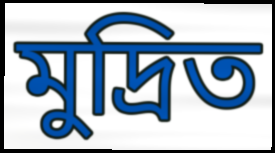
মুদ্ৰিত